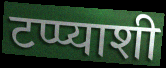
टप्प्याशी